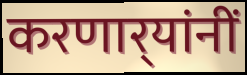
करणार्‍यांनीं